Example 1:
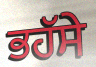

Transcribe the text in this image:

ਭਹੱਸੇ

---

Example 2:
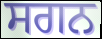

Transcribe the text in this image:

ਸਗਨ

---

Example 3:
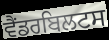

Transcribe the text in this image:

ਵੈਂਡਰਬਿਲਟਸ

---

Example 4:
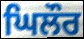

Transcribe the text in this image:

ਘਿਲੌਰ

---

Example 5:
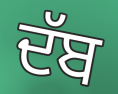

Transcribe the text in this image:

ਦੱਬ